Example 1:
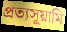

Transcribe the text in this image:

প্রত্যসূয়ামি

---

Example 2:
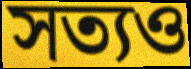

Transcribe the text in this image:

সত্যও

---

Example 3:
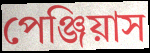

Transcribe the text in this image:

পেঞ্জিয়াস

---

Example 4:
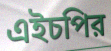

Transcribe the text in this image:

এইচপির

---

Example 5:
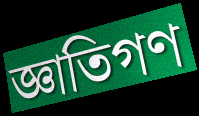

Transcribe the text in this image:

জ্ঞাতিগণ